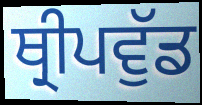
ਥ੍ਰੀਪਵੁੱਡ